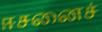
ஈசனைச்